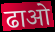
ढाओ